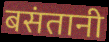
बसंतानी